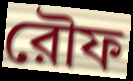
রৌফ